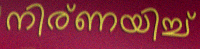
നിര്ണയിച്ച്